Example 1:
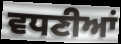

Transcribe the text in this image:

ਵਧਣੀਆਂ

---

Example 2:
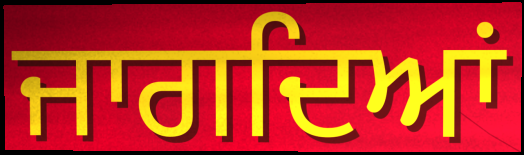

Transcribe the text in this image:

ਜਾਗਦਿਆਂ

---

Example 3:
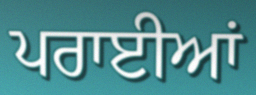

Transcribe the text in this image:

ਪਰਾਈਆਂ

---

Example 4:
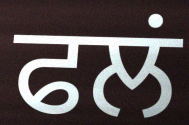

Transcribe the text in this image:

ਫਲਂ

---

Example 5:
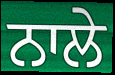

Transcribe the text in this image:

ਨਾਲੇ